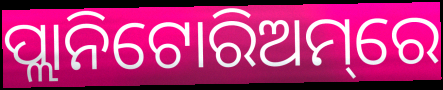
ପ୍ଲାନିଟୋରିଅମ୍‌ରେ